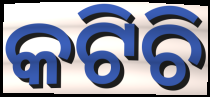
କଟିଚି